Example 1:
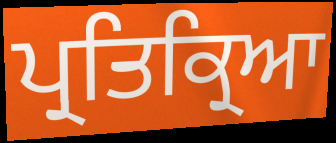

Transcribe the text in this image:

ਪ੍ਰਤਿਕ੍ਰਿਆ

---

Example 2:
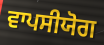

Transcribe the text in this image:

ਵਾਪਸੀਯੋਗ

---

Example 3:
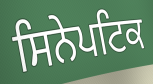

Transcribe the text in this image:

ਸਿਨੇਪਟਿਕ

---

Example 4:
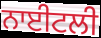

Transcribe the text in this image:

ਨਾਈਟਲੀ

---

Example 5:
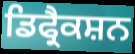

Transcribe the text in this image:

ਡਿਫ੍ਰੈਕਸ਼ਨ